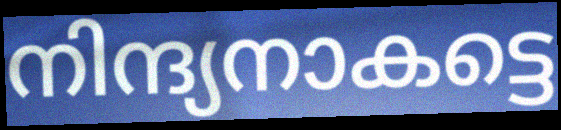
നിന്ദ്യനാകട്ടെ